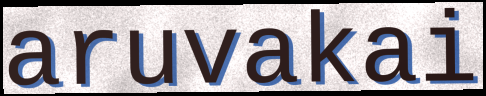
aruvakai